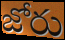
జోరు